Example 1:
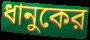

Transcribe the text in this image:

ধানুকের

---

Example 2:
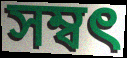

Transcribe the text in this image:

সম্বৎ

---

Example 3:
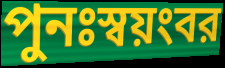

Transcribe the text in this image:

পুনঃস্বয়ংবর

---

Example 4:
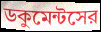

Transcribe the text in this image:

ডকুমেন্টসের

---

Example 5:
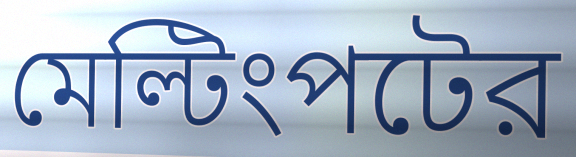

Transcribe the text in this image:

মেল্টিংপটের